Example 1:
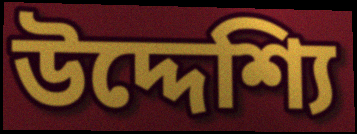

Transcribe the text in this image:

উদ্দেশ্যি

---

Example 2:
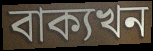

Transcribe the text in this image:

বাক্যখন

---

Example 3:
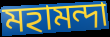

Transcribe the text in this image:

মহামন্দা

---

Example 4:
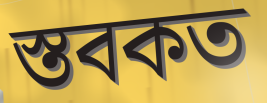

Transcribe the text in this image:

স্তবকত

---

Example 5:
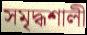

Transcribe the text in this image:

সমৃদ্ধশালী